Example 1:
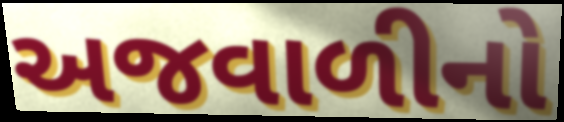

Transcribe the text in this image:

અજવાળીનો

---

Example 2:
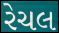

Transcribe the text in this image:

રેચલ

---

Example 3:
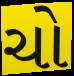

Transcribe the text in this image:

ચો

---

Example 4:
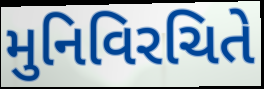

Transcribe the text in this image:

મુનિવિરચિતે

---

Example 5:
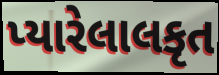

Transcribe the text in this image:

પ્યારેલાલકૃત